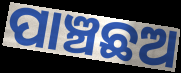
ପାଞ୍ଚଛଅ